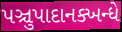
પઞ્ચુપાદાનક્ખન્ધે